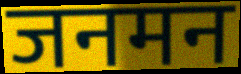
जनमन